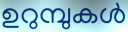
ഉറുമ്പുകൾ